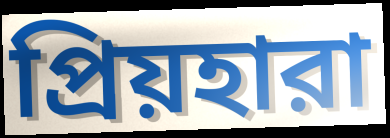
প্রিয়হারা